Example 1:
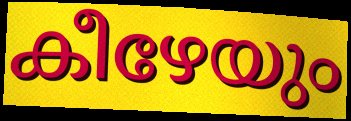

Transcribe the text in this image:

കീഴേയും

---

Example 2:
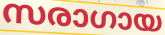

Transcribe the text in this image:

സരാഗായ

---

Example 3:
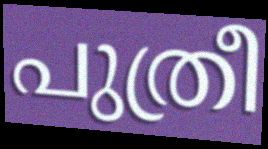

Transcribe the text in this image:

പുത്രീ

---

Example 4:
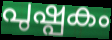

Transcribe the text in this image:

പുഷ്പകം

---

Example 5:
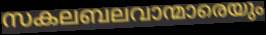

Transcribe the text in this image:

സകലബലവാന്മാരെയും